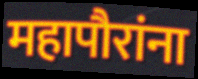
महापौरांना